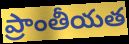
ప్రాంతీయత